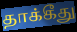
தாக்கீது